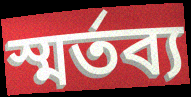
স্মৰ্তব্য